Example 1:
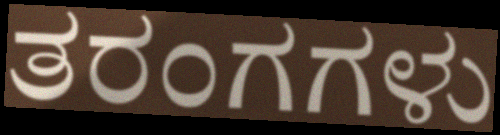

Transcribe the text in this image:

ತರಂಗಗಳು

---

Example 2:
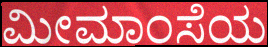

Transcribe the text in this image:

ಮೀಮಾಂಸೆಯ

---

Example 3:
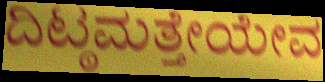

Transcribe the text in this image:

ದಿಟ್ಠಮತ್ತೇಯೇವ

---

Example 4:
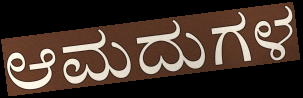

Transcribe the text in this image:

ಆಮದುಗಳ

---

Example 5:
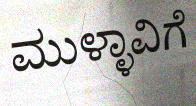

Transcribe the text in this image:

ಮುಳ್ಳಾವಿಗೆ